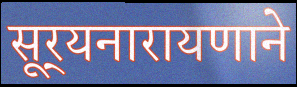
सूर्यनारायणाने